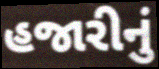
હજારીનું